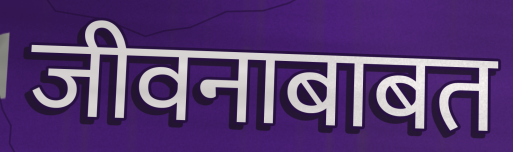
जीवनाबाबत